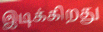
இடிக்கிறது